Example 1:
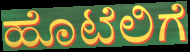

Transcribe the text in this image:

ಹೊಟೆಲಿಗೆ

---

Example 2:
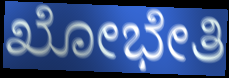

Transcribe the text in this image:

ಖೋಭೇತಿ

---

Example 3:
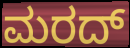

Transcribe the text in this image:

ಮರದ್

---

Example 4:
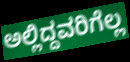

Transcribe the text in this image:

ಅಲ್ಲಿದ್ದವರಿಗೆಲ್ಲ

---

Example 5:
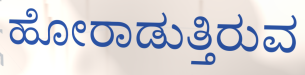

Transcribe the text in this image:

ಹೋರಾಡುತ್ತಿರುವ